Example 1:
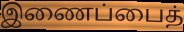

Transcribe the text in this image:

இணைப்பைத்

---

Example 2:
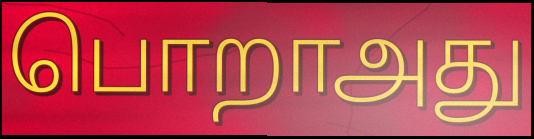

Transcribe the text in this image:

பொறாஅது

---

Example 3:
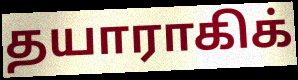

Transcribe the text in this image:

தயாராகிக்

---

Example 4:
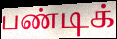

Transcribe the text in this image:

பண்டிக்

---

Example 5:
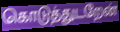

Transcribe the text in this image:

கொடுத்துடறேன்